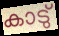
കാടു്